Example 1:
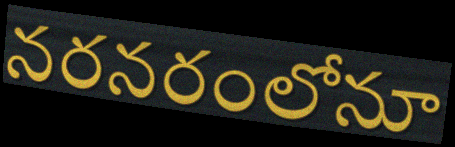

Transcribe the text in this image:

నరనరంలోనూ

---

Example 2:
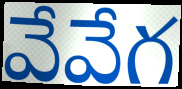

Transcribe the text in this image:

వేవేగ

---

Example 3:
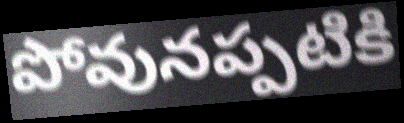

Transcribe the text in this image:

పోవునప్పటికి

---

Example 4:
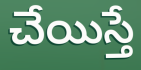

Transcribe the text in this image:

చేయిస్తే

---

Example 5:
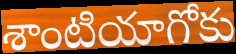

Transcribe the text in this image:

శాంటియాగోకు